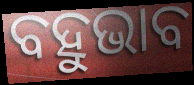
ବହୁଭାବ